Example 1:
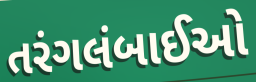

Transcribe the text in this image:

તરંગલંબાઈઓ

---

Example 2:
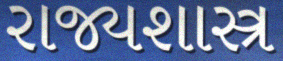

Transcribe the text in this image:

રાજ્યશાસ્ત્ર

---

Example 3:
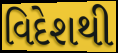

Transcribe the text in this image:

વિદેશથી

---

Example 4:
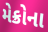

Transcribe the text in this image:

મેક્રોના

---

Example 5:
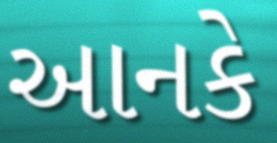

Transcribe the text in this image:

આનકે